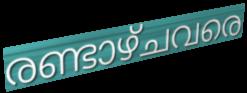
രണ്ടാഴ്ചവരെ